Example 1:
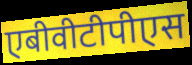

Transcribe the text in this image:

एबीवीटीपीएस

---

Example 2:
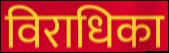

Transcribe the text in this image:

विराधिका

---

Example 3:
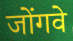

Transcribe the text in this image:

जोंगवे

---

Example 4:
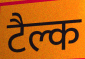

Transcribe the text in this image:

टैल्क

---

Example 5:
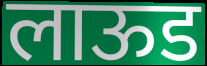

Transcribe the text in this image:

लाऊड